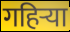
गहिऱ्या